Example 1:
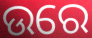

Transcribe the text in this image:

ଉରେ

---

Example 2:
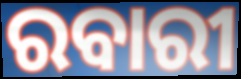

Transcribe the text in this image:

ରବାରୀ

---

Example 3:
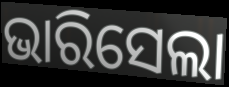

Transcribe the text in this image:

ଭାରିସେଲା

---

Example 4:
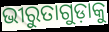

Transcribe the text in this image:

ଭୀରୁତାଗୁଡ଼ାକୁ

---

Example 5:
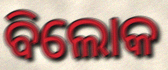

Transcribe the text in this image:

ବିଲୋକ